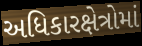
અધિકારક્ષેત્રોમાં